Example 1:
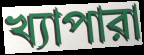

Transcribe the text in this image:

খ্যাপারা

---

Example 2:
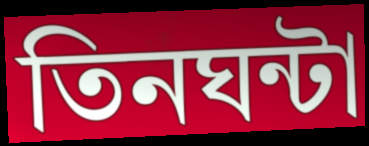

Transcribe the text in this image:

তিনঘন্টা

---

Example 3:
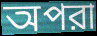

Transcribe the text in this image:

অপরা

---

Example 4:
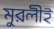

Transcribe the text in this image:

মুরলীই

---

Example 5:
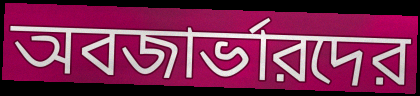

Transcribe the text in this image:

অবজার্ভারদের